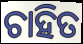
ଚାହିତ